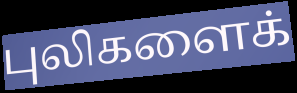
புலிகளைக்